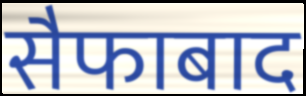
सैफाबाद